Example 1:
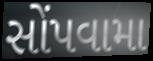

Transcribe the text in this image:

સોંપવામા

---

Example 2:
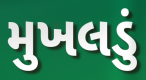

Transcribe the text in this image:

મુખલડું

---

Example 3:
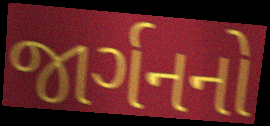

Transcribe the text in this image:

જાર્ગનનો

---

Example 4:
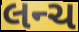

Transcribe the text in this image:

લન્ચ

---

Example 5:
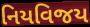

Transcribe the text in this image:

નિયવિજય